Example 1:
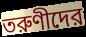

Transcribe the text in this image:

তরুণীদের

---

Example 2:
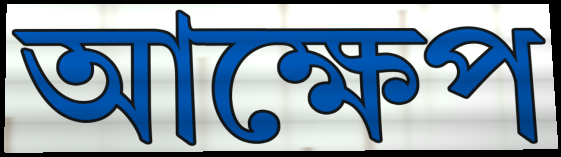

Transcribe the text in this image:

আক্ষেপ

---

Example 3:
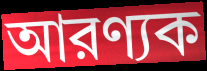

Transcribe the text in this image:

আরণ্যক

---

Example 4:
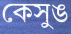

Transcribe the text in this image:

কেসুঙ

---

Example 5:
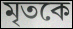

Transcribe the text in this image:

মৃতকে